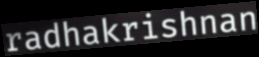
radhakrishnan